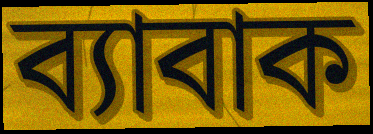
ব্যাবাক